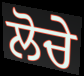
ਲੋਚੇ